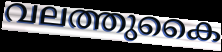
വലത്തുകൈ